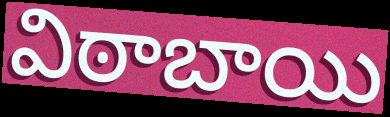
విఠాబాయి